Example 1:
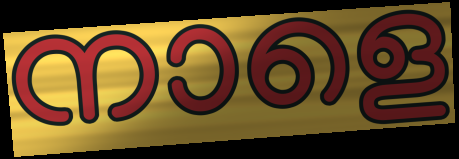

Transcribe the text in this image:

നാളെ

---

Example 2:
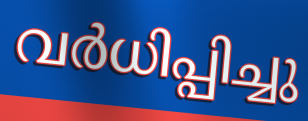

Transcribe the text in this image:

വർധിപ്പിച്ചു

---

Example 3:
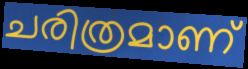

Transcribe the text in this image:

ചരിത്രമാണ്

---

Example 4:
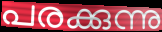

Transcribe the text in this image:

പരക്കുന്നു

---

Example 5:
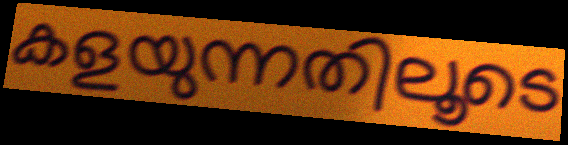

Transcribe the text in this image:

കളയുന്നതിലൂടെ